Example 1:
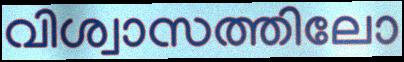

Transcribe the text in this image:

വിശ്വാസത്തിലോ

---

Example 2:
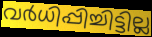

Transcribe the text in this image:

വർധിപ്പിച്ചിട്ടില്ല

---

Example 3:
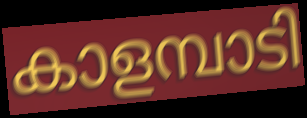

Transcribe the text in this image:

കാളമ്പാടി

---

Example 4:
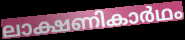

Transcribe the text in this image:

ലാക്ഷണികാർഥം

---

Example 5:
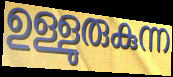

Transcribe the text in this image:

ഉള്ളുരുകുന്ന